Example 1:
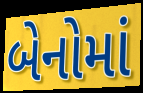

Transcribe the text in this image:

બેનોમાં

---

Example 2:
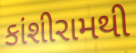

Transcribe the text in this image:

કાંશીરામથી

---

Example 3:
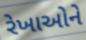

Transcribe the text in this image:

રેખાઓને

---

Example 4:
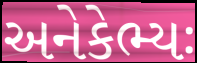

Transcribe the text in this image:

અનેકેભ્યઃ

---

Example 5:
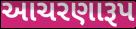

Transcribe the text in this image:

આચરણારૂપ